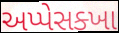
અપ્પેસક્ખા